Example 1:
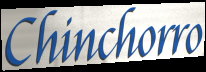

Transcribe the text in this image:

Chinchorro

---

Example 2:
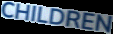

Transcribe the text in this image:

CHILDREN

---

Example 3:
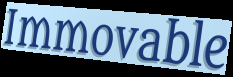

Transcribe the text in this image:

Immovable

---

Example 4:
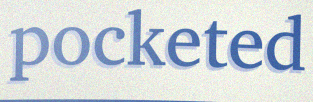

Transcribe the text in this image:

pocketed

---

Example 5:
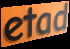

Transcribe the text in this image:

etad